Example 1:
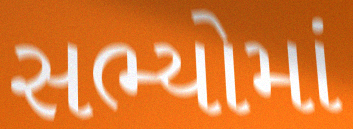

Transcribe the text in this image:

સભ્યોમાં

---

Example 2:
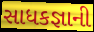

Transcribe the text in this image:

સાધકજ્ઞાની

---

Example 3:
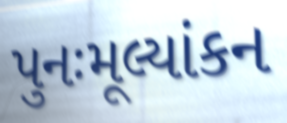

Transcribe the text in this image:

પુનઃમૂલ્યાંકન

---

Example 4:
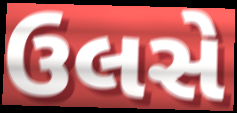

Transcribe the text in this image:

ઉલસે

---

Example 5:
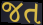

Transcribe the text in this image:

જત